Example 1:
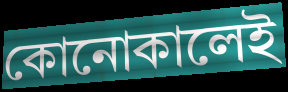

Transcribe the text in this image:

কোনোকালেই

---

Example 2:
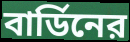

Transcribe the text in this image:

বার্ডিনের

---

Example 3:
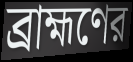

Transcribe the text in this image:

ব্রাহ্মণের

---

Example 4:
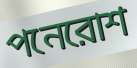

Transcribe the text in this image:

পনেরোশ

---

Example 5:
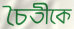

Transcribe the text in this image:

চৈতীকে